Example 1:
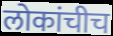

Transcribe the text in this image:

लोकांचीच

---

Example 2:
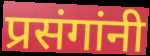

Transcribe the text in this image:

प्रसंगांनी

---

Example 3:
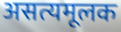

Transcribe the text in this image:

असत्यमूलक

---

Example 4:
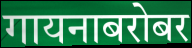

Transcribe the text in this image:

गायनाबरोबर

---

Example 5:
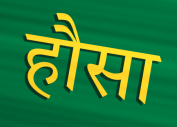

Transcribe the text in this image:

हौसा